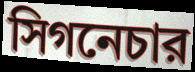
সিগনেচার